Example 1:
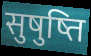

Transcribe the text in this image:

सुषुष्ति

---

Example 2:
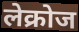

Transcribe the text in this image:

लेक्रोज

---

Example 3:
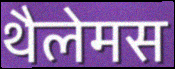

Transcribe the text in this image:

थैलेमस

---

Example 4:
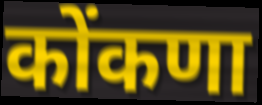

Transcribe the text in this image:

कोंकणा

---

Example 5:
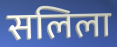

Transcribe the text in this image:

सलिला